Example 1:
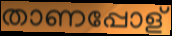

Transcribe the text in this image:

താണപ്പോള്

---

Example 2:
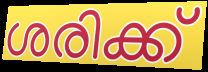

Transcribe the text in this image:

ശരിക്ക്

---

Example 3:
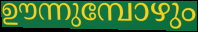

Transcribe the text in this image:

ഊന്നുമ്പോഴും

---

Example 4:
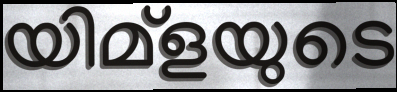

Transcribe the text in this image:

യിമ്ളയുടെ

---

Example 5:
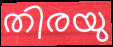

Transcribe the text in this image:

തിരയു